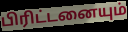
பிரிட்டனையும்